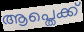
ആപ്തെക്ക്